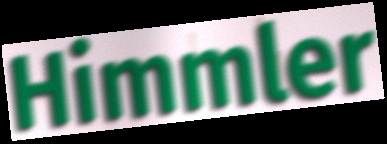
Himmler